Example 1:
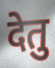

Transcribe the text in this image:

देतु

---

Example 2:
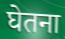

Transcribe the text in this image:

घेतना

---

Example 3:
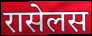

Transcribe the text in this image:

रासेलस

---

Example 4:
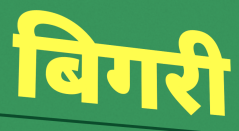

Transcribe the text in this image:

बिगरी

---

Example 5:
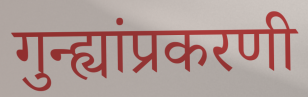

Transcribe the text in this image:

गुन्ह्यांप्रकरणी